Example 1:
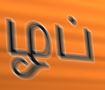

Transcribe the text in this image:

ழப்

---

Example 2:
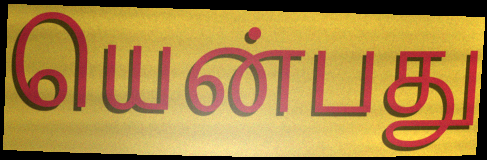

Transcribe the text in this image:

யென்பது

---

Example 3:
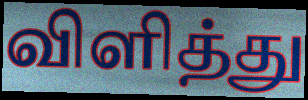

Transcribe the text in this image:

விளித்து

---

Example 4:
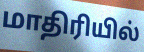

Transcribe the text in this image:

மாதிரியில்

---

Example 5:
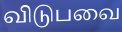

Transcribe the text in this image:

விடுபவை